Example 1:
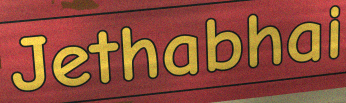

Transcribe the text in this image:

Jethabhai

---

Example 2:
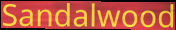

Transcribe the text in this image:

Sandalwood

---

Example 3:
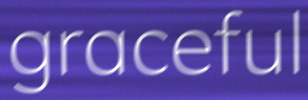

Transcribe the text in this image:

graceful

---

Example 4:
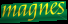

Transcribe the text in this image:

magnes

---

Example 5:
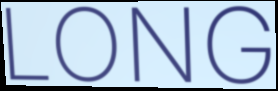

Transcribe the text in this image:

LONG